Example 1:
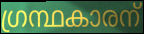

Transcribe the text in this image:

ഗ്രന്ഥകാരന്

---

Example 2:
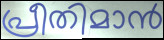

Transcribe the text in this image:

പ്രീതിമാൻ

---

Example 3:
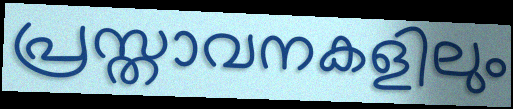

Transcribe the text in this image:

പ്രസ്താവനകളിലും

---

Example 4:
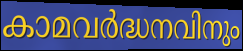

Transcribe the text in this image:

കാമവർദ്ധനവിനും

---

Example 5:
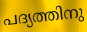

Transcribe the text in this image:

പദ്യത്തിനു